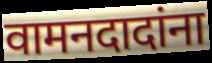
वामनदादांना